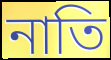
নাতি